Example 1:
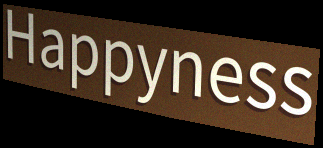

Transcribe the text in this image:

Happyness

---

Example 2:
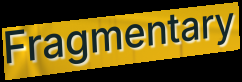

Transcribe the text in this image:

Fragmentary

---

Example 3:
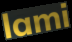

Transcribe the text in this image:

lami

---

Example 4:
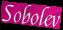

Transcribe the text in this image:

Sobolev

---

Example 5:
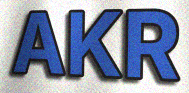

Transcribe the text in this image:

AKR